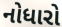
નોધારો